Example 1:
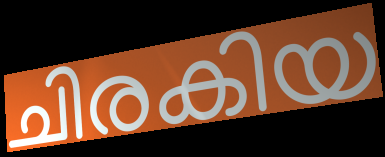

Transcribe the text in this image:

ചിരകിയ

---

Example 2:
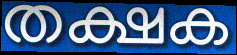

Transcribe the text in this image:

തക്ഷക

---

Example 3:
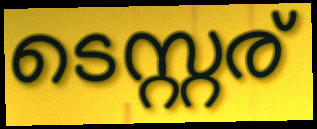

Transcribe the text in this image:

ടെസ്റ്റര്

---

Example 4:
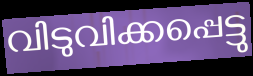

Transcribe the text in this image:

വിടുവിക്കപ്പെട്ടു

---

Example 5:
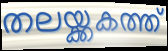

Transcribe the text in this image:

തലയ്ക്കകത്ത്